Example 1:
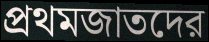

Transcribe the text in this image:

প্রথমজাতদের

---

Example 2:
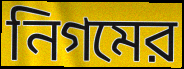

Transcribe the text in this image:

নিগমের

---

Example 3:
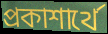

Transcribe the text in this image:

প্রকাশার্থে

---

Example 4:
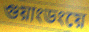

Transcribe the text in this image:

গুয়াংডংয়ে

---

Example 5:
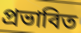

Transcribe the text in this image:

প্রভাবিত